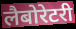
लैबोरेटरी